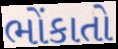
ભોંકાતો